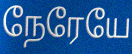
நேரேயே